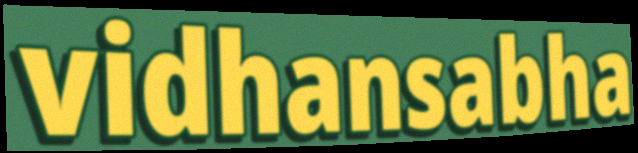
vidhansabha